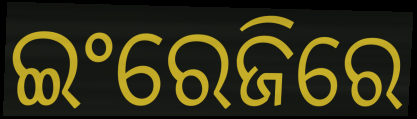
ଇଂରେଜିରେ